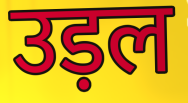
उड़ल